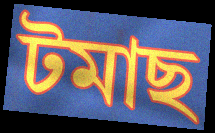
টমাছ